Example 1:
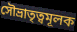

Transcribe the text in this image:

সৌভ্রাতৃত্বমূলক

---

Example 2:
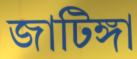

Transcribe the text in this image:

জাটিঙ্গা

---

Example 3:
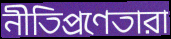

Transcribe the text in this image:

নীতিপ্রণেতারা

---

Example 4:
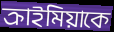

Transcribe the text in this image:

ক্রাইমিয়াকে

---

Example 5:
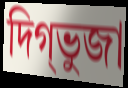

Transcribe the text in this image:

দিগ্ভুজা